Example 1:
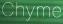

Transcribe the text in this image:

Chyme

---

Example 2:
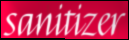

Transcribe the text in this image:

sanitizer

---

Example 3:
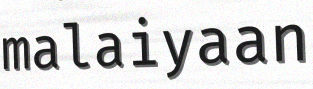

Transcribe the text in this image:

malaiyaan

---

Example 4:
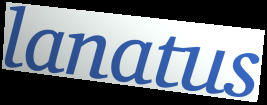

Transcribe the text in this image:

lanatus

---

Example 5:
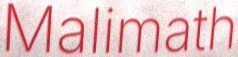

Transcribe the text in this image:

Malimath